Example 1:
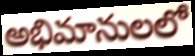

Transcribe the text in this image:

అభిమానులలో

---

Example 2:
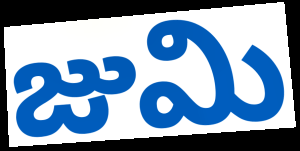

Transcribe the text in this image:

జుమి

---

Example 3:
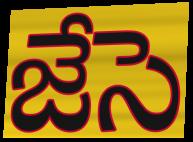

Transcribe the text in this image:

జేసె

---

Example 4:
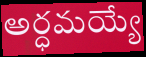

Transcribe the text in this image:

అర్ధమయ్యే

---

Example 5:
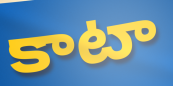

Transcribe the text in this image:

కాటా